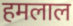
हमलाल